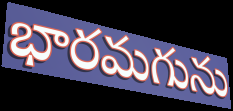
భారమగును